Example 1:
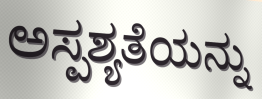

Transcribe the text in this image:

ಅಸ್ಪಶ್ಯತೆಯನ್ನು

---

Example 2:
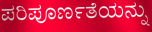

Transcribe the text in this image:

ಪರಿಪೂರ್ಣತೆಯನ್ನು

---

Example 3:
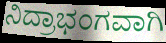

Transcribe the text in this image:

ನಿದ್ರಾಭಂಗವಾಗಿ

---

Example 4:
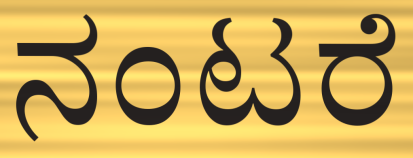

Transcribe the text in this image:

ನಂಟರೆ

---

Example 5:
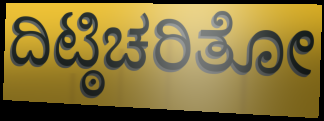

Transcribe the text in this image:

ದಿಟ್ಠಿಚರಿತೋ